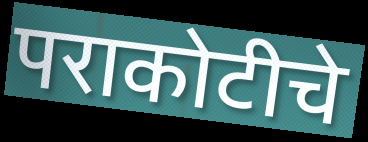
पराकोटीचे